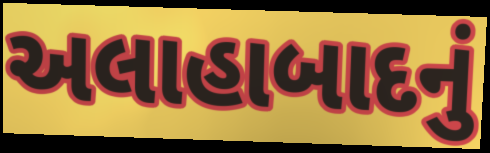
અલાહાબાદનું